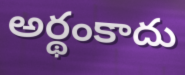
అర్థంకాదు